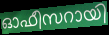
ഓഫീസറായി